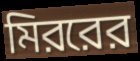
মিররের